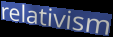
relativism